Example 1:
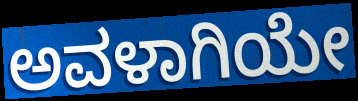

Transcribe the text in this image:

ಅವಳಾಗಿಯೇ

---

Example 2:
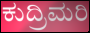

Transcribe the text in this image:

ಕುದ್ರಿಮರಿ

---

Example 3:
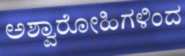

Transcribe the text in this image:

ಅಶ್ವಾರೋಹಿಗಳಿಂದ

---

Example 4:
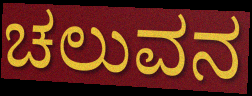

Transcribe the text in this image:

ಚಲುವನ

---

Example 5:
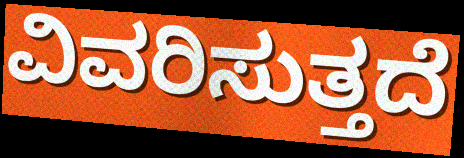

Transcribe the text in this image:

ವಿವರಿಸುತ್ತದೆ